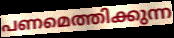
പണമെത്തിക്കുന്ന